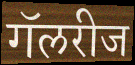
गॅलरीज